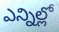
ఎన్నిల్లో